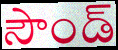
సౌండ్